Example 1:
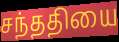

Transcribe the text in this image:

சந்ததியை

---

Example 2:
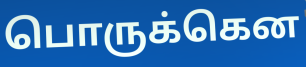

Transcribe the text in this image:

பொருக்கென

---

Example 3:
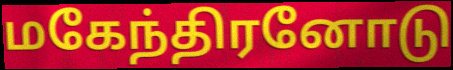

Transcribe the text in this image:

மகேந்திரனோடு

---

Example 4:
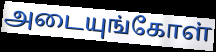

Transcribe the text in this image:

அடையுங்கோள்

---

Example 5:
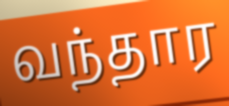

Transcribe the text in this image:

வந்தார